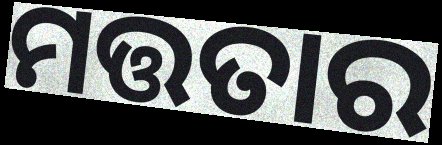
ମତ୍ତତାର